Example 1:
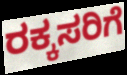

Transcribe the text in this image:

ರಕ್ಕಸರಿಗೆ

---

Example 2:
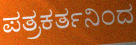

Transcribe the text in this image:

ಪತ್ರಕರ್ತನಿಂದ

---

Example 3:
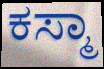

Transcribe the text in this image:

ಕಸ್ಮಾ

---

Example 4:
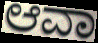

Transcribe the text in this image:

ಆವಾ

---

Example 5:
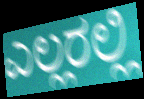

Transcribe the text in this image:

ಎಲ್ಲರಲ್ಲಿ